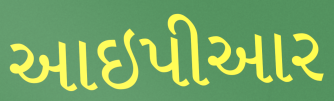
આઇપીઆર